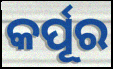
କର୍ପୂର